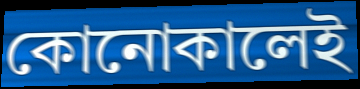
কোনোকালেই